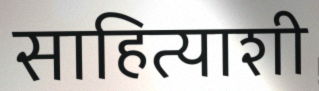
साहित्याशी